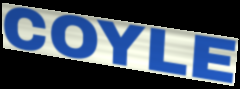
COYLE